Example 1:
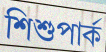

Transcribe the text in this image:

শিশুপার্ক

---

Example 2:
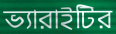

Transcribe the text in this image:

ভ্যারাইটির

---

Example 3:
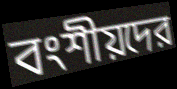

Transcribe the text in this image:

বংশীয়দের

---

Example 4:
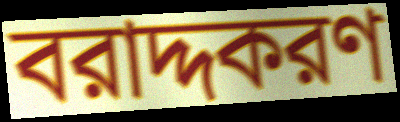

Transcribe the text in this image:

বরাদ্দকরণ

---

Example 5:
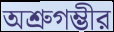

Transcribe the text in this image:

অশ্রুগম্ভীর